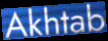
Akhtab